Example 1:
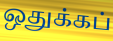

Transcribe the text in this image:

ஒதுக்கப்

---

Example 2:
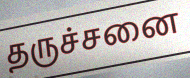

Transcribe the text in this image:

தருச்சனை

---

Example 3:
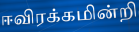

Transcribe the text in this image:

ஈவிரக்கமின்றி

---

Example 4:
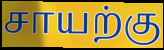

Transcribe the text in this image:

சாயற்கு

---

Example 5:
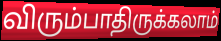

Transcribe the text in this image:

விரும்பாதிருக்கலாம்